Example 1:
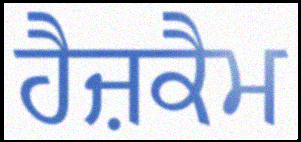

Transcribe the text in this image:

ਹੈਜ਼ਕੈਮ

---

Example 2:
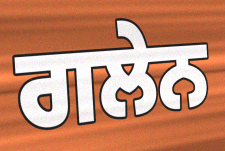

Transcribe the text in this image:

ਗਲੇਨ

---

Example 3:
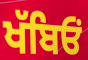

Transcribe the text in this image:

ਖੱਬਿਓਂ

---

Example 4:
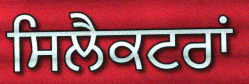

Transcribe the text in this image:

ਸਿਲੈਕਟਰਾਂ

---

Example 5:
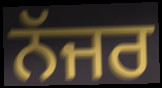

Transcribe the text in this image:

ਨੱਜਰ